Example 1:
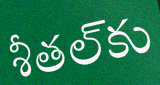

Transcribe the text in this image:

శీతల్‌కు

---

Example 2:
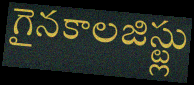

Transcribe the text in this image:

గైనకాలజిస్ట్లు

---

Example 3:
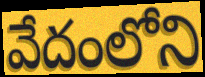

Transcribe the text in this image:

వేదంలోని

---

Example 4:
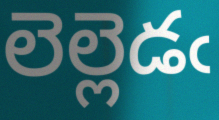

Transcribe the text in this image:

లెల్లెడఁ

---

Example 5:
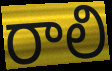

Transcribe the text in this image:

రాలి